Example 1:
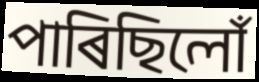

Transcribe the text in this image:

পাৰিছিলোঁ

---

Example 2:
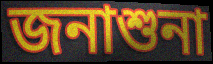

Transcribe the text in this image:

জনাশুনা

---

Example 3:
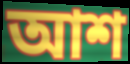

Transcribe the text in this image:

আশ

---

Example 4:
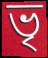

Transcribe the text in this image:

ভৃ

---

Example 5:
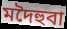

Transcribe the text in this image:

মদৈহুবা